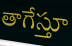
తాగేస్తూ